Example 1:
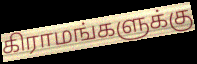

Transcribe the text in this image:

கிராமங்களுக்கு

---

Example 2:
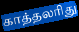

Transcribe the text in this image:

காத்தலரிது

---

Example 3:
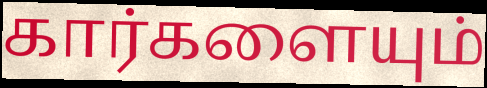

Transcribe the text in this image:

கார்களையும்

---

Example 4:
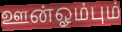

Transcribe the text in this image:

ஊன்ஓம்பும்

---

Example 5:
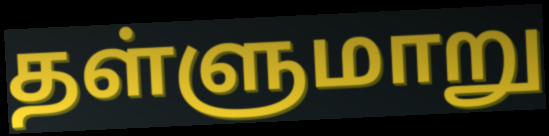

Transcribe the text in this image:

தள்ளுமாறு